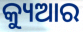
କ୍ୟୁଆର